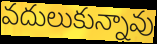
వదులుకున్నావు